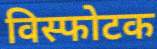
विस्फोटक